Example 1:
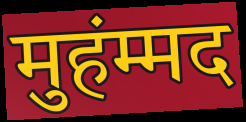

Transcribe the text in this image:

मुहंम्मद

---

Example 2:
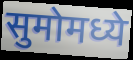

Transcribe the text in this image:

सुमोमध्ये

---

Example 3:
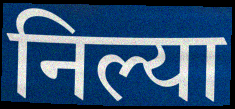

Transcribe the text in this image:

निल्या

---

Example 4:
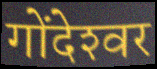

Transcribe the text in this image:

गोंदेश्वर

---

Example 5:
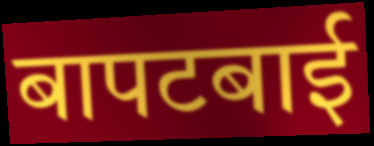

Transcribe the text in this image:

बापटबाई